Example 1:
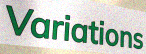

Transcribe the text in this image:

Variations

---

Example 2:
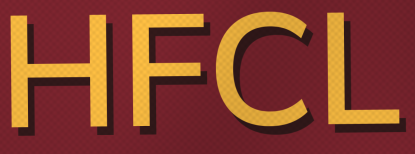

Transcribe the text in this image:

HFCL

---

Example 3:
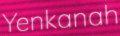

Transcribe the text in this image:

Yenkanah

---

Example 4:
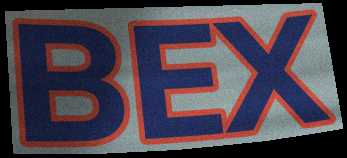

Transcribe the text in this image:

BEX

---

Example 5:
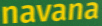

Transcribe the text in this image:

navana